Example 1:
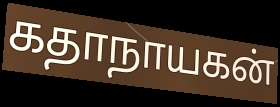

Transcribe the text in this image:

கதாநாயகன்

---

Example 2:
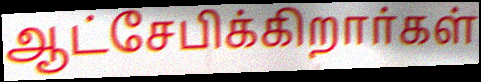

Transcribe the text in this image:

ஆட்சேபிக்கிறார்கள்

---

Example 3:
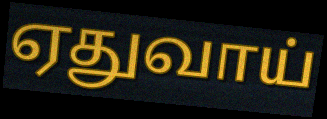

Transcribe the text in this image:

ஏதுவாய்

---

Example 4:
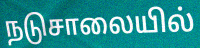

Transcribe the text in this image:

நடுசாலையில்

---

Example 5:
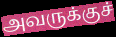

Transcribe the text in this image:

அவருக்குச்